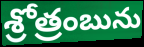
శ్రోత్రంబును